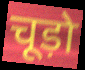
चूड़ो